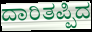
ದಾರಿತಪ್ಪಿದ